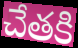
చేతకి